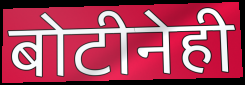
बोटीनेही